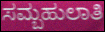
ಸಮ್ಬಹುಲಾತಿ